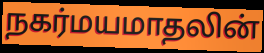
நகர்மயமாதலின்